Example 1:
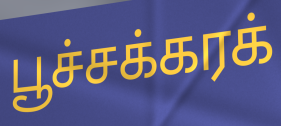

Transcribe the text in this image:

பூச்சக்கரக்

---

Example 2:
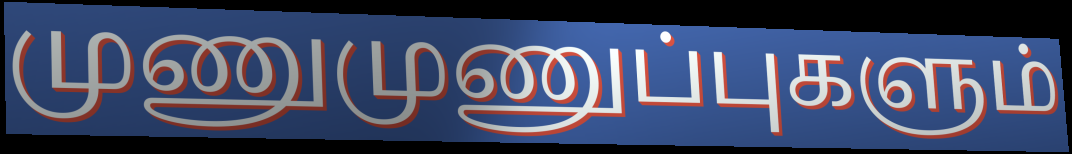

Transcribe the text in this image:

முணுமுணுப்புகளும்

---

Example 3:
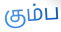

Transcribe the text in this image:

கும்ப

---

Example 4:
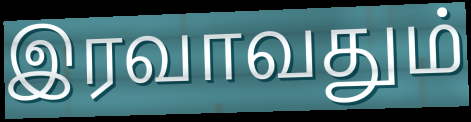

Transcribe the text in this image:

இரவாவதும்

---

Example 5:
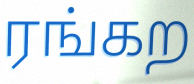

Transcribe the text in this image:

ரங்கற